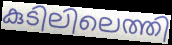
കുടിലിലെത്തി